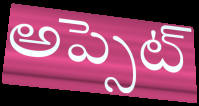
అప్సెట్